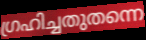
ഗ്രഹിച്ചതുതന്നെ